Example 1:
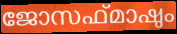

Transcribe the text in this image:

ജോസഫ്മാഷും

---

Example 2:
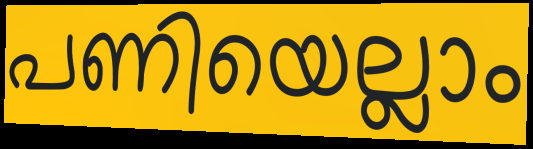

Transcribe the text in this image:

പണിയെല്ലാം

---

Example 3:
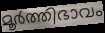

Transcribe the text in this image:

മൂർത്തിഭാവം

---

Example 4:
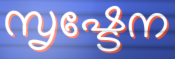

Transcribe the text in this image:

സൃഷ്ടേന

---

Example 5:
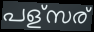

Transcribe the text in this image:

പള്സര്